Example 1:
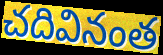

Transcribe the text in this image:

చదివినంత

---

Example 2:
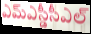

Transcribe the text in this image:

ఎమ్ఎస్డీసీఎల్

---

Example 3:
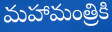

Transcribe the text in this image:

మహామంత్రికి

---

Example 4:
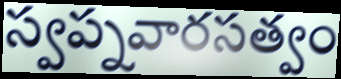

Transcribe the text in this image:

స్వప్నవారసత్వం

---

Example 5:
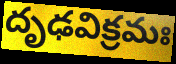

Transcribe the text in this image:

దృఢవిక్రమః